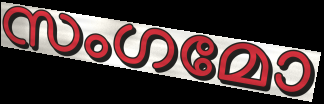
സംഗമോ